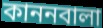
কাননবালা